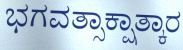
ಭಗವತ್ಸಾಕ್ಷಾತ್ಕಾರ